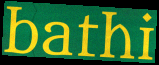
bathi